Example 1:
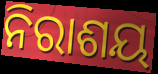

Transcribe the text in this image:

ନିରାଶୟ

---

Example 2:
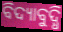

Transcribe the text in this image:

ବିଦ୍ୟାବୁଦ୍ଧି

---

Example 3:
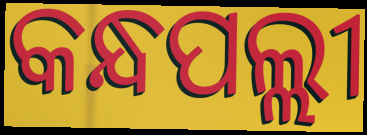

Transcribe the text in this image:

କନ୍ଧପଲ୍ଲୀ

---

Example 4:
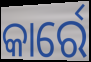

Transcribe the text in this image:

କାର୍ରେ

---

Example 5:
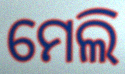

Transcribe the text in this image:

ମେଲି